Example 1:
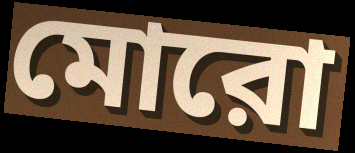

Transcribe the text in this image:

মোরো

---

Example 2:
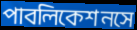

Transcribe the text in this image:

পাবলিকেশনসে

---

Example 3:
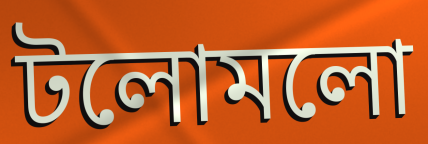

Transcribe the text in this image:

টলোমলো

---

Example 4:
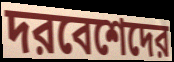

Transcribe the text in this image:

দরবেশেদের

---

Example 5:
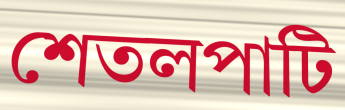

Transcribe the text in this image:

শেতলপাটি